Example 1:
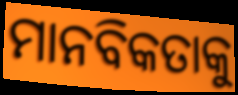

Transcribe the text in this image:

ମାନବିକତାକୁ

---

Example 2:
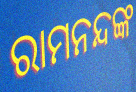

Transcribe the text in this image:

ରାମନନ୍ଦଙ୍କ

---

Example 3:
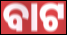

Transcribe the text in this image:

ବାଟ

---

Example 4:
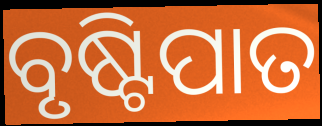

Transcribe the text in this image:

ବୃଷ୍ଟିପାତ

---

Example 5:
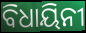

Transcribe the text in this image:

ବିଧାୟିନୀ